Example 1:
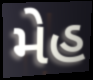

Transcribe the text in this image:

મેહ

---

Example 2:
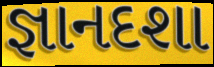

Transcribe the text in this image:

જ્ઞાનદશા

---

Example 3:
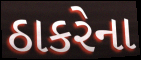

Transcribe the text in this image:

ઠાકરેના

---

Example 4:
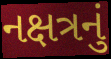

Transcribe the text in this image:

નક્ષત્રનું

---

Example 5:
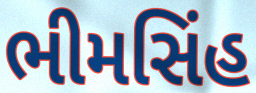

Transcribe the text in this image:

ભીમસિંહ